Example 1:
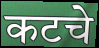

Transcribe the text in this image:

कटचे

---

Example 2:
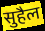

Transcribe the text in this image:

सुहैल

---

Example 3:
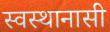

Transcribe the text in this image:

स्वस्थानासी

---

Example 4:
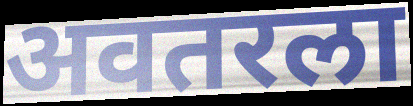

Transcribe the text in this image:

अवतरला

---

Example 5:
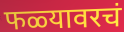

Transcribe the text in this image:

फळ्यावरचं